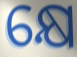
କ୍ଷେ